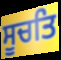
ਸੂਚਤਿ